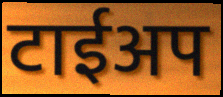
टाईअप